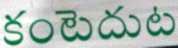
కంటెదుట